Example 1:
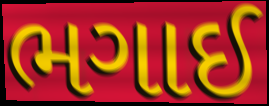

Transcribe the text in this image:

ભગાઈ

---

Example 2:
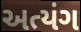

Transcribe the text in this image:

અત્યંગ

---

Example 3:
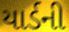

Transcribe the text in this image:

યાર્ડની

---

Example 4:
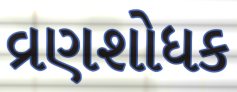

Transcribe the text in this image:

વ્રણશોધક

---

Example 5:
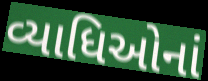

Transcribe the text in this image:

વ્યાધિઓનાં